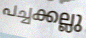
പച്ചക്കല്ലു